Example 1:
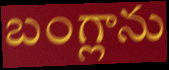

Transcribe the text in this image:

బంగ్లాను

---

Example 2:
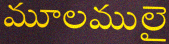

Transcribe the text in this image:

మూలములై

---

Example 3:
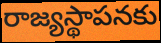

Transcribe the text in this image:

రాజ్యస్థాపనకు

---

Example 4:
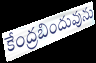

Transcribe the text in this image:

కేంద్రబిందువును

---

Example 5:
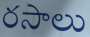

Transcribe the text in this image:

రసాలు